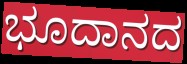
ಭೂದಾನದ